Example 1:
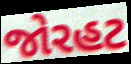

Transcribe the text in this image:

જોરહટ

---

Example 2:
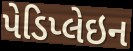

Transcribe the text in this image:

પેડિપ્લેઇન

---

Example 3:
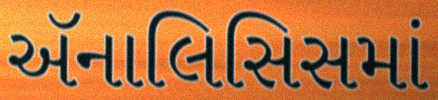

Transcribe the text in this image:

ઍનાલિસિસમાં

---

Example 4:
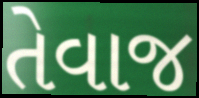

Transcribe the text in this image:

તેવાજ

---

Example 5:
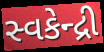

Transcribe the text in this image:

સ્વકેન્દ્રી